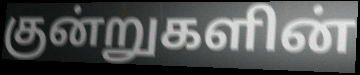
குன்றுகளின்